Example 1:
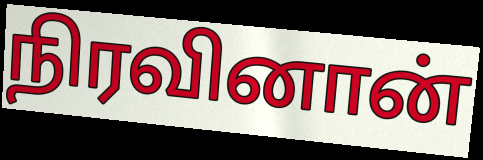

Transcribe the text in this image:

நிரவினான்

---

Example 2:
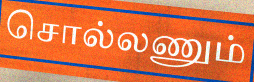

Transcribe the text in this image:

சொல்லணும்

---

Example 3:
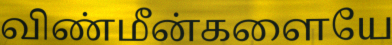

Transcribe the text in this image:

விண்மீன்களையே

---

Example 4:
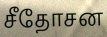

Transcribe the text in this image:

சீதோசன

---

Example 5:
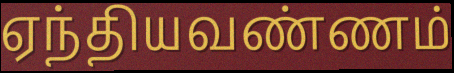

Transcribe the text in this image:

ஏந்தியவண்ணம்